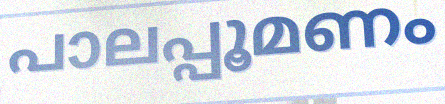
പാലപ്പൂമണം